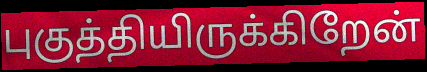
புகுத்தியிருக்கிறேன்